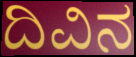
ದಿವಿನ